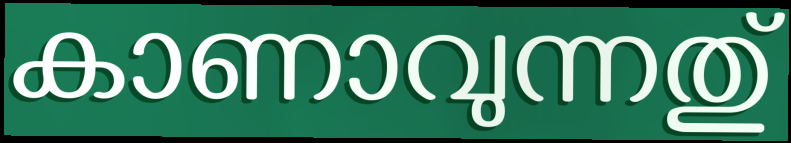
കാണാവുന്നതു്